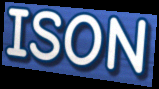
ISON